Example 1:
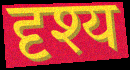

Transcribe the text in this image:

दृश्‍य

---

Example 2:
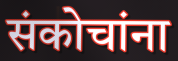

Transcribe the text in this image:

संकोचांना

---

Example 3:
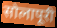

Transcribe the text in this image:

सोलापूरी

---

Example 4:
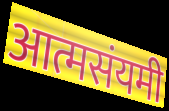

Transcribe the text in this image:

आत्मसंयमी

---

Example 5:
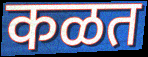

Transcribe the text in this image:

कळत